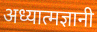
अध्यात्मज्ञानी